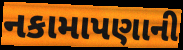
નકામાપણાની